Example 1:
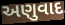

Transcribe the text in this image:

અણુવાદ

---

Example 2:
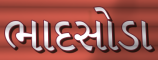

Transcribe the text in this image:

ભાદસોડા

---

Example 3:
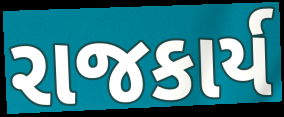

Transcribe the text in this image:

રાજકાર્ય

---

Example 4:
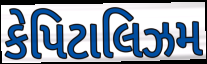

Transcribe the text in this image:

કેપિટાલિઝમ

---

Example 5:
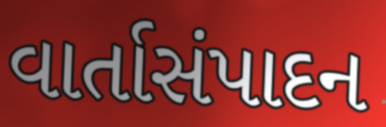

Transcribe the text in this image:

વાર્તાસંપાદન